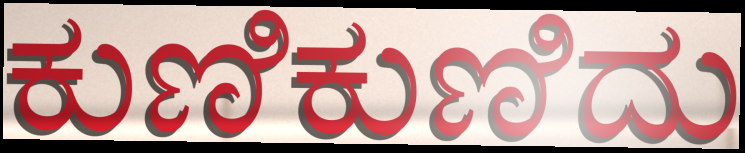
ಕುಣಿಕುಣಿದು